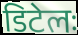
डिटेलः